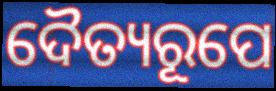
ଦୈତ୍ୟରୂପେ